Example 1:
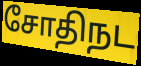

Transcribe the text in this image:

சோதிநட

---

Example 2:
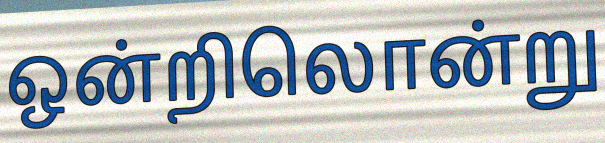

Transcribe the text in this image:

ஒன்றிலொன்று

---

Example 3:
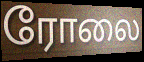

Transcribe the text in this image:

ரோலை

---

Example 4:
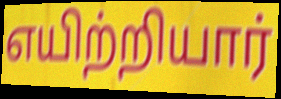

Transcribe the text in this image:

எயிற்றியார்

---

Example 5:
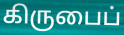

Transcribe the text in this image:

கிருபைப்